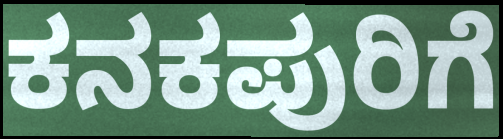
ಕನಕಪುರಿಗೆ